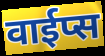
वाईप्स